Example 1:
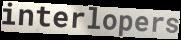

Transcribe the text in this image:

interlopers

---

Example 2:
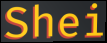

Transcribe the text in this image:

Shei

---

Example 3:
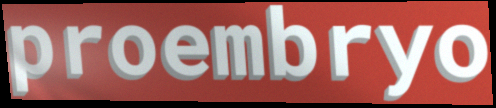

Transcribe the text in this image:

proembryo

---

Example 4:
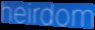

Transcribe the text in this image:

heirdom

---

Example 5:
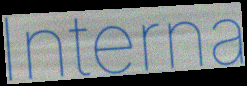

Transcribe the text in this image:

Interna